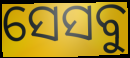
ସେସବୁ